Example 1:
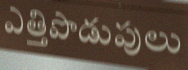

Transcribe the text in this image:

ఎత్తిపొడుపులు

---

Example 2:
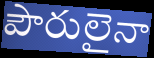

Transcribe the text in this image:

పౌరులైనా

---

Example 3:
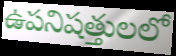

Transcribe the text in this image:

ఉపనిషత్తులలో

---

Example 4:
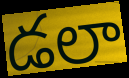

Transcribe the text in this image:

డలా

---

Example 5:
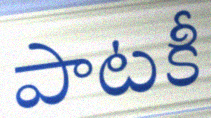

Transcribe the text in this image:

పాటకీ